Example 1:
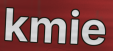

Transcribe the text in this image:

kmie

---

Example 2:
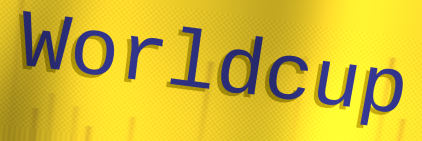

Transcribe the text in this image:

Worldcup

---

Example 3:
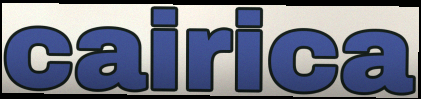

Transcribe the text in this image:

cairica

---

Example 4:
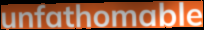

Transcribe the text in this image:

unfathomable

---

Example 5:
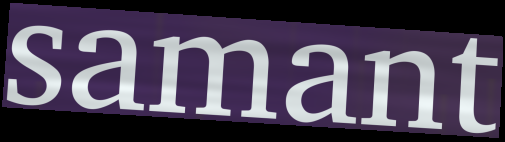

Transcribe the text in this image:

samant